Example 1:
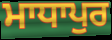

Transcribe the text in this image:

ਮਾਧਾਪੁਰ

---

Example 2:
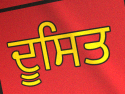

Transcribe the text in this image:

ਦੂਸਿਤ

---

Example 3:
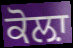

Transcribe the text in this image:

ਕੋਲ਼ਾ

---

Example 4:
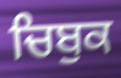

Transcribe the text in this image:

ਚਿਬੁਕ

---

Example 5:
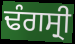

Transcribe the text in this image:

ਢੰਗਸ੍ਰੀ